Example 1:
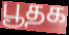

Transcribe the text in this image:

பூதக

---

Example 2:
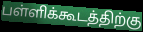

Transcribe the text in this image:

பள்ளிக்கூடத்திற்கு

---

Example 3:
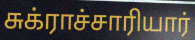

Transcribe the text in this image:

சுக்ராச்சாரியார்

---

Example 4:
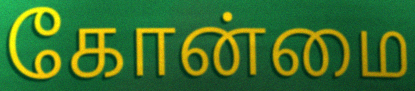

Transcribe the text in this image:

கோன்மை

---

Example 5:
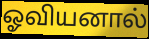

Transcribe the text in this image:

ஓவியனால்